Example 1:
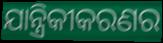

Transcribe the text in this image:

ଯାନ୍ତ୍ରିକୀକରଣର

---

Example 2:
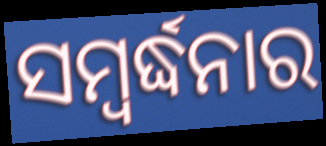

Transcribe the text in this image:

ସମ୍ବର୍ଦ୍ଧନାର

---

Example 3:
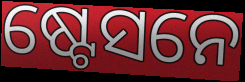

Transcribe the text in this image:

ଷ୍ଟେସନେ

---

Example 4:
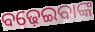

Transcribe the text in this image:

ବଢ଼େଇବାଙ୍କ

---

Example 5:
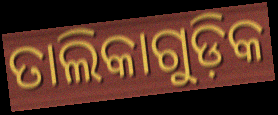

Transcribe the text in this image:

ତାଲିକାଗୁଡ଼ିକ